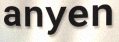
anyen